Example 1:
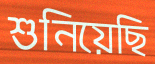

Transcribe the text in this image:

শুনিয়েছি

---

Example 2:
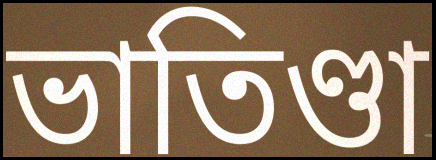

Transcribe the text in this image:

ভাতিণ্ডা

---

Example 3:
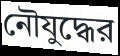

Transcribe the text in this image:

নৌযুদ্ধের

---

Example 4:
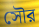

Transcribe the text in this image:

সৌর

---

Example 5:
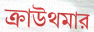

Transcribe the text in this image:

ক্রাউথমার